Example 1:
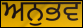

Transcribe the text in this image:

ਅਨੁਭਵ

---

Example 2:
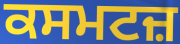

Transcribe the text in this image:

ਕਸਮਟਜ਼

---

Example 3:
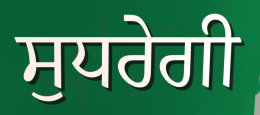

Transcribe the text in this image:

ਸੁਧਰੇਗੀ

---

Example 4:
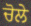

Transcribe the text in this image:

ਚੋਲੇ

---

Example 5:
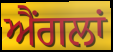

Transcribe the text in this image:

ਐਂਗਲਾਂ